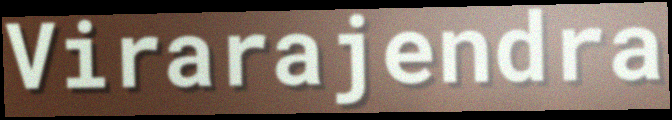
Virarajendra